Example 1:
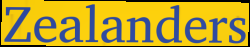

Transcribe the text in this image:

Zealanders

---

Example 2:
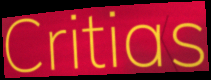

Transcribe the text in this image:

Critias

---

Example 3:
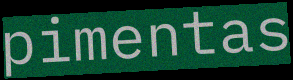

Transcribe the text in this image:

pimentas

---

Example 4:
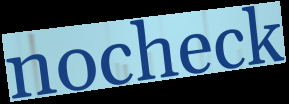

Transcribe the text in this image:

nocheck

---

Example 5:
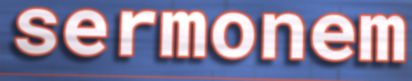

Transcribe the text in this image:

sermonem